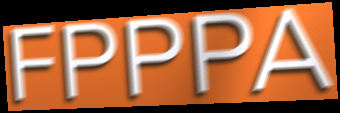
FPPPA